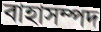
বাহাসম্পদ